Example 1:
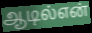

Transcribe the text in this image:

ஆடில்என்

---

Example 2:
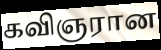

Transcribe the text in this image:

கவிஞரான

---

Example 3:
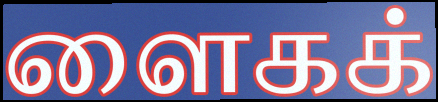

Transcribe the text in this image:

ளைகக்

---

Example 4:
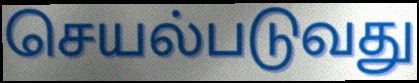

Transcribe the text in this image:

செயல்படுவது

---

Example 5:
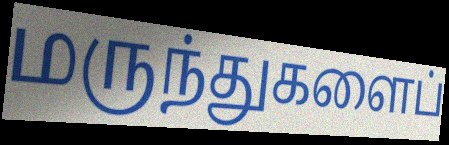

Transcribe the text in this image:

மருந்துகளைப்